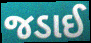
જડાઈ